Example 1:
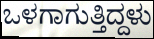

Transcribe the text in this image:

ಒಳಗಾಗುತ್ತಿದ್ದಳು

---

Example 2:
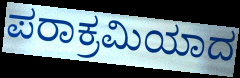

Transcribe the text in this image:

ಪರಾಕ್ರಮಿಯಾದ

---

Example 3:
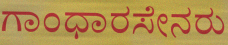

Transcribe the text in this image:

ಗಾಂಧಾರಸೇನರು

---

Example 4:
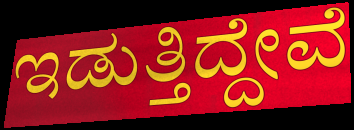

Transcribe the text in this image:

ಇಡುತ್ತಿದ್ದೇವೆ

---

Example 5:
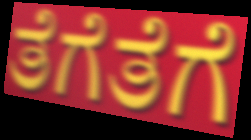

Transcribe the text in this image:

ತೆಗೆತೆಗೆ